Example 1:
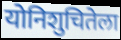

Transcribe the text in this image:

योनिशुचितेला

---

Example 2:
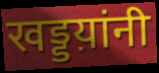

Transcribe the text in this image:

खड्डय़ांनी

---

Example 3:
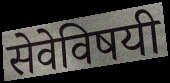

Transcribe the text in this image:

सेवेविषयी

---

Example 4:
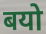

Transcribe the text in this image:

बयो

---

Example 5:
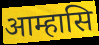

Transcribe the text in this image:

आम्हासि